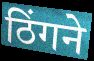
ठिंगने